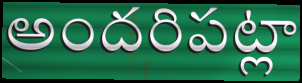
అందరిపట్లా